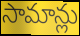
సామాన్లు